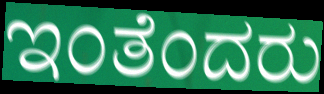
ಇಂತೆಂದರು